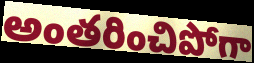
అంతరించిపోగా